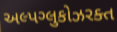
અલ્પગ્લુકોઝરક્ત